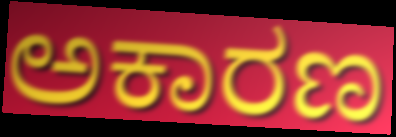
ಅಕಾರಣ